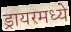
ड्रायरमध्ये